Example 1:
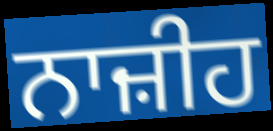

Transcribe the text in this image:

ਨਾਜ਼ੀਹ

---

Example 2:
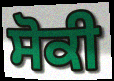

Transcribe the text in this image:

ਸੋਕੀ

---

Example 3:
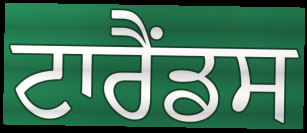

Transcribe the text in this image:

ਟਾਰੈਂਡਸ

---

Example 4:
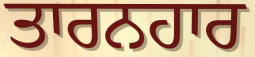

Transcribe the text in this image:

ਤਾਰਨਹਾਰ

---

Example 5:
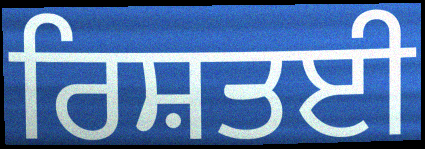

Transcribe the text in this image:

ਰਿਸ਼ਤਈ